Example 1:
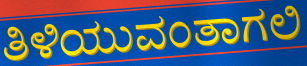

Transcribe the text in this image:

ತಿಳಿಯುವಂತಾಗಲಿ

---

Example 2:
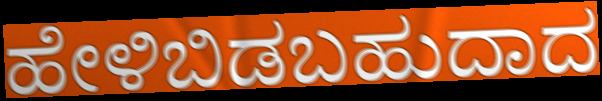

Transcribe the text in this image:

ಹೇಳಿಬಿಡಬಹುದಾದ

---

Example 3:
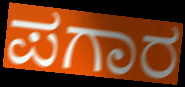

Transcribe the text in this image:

ಪಗಾರ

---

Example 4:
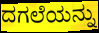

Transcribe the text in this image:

ದಗಲೆಯನ್ನು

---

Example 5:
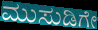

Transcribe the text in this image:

ಮುಸುಡಿಗೇ